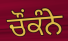
ਚੌਂਕੰਨੇ